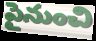
పైనుంచి